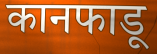
कानफाडू